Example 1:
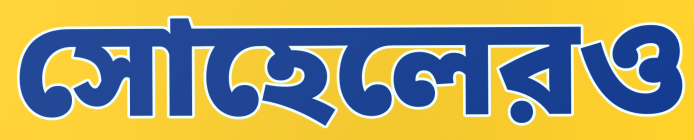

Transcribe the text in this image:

সোহেলেরও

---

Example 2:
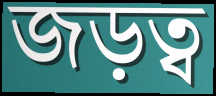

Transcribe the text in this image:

জড়ত্ব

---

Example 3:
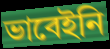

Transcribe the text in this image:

ভাবেইনি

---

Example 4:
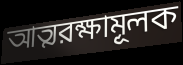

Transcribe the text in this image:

আত্মরক্ষামূলক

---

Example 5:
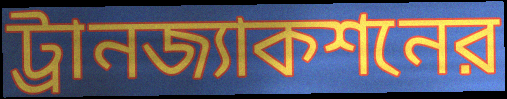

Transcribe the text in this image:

ট্রানজ্যাকশনের